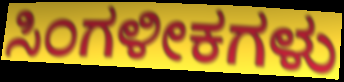
ಸಿಂಗಳೀಕಗಳು